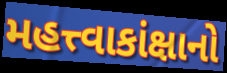
મહત્ત્વાકાંક્ષાનો